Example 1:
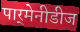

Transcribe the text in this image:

पार्मेनीडीज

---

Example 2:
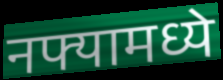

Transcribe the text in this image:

नफ्यामध्ये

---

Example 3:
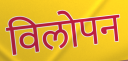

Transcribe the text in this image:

विलोपन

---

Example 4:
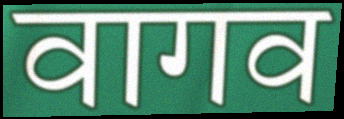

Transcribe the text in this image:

वागव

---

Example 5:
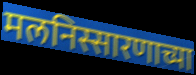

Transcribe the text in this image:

मलनिस्सारणाच्या